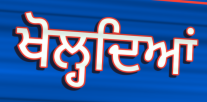
ਖੋਲ੍ਹਦਿਆਂ